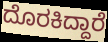
ದೊರಕಿದ್ದಾರೆ